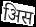
अिस